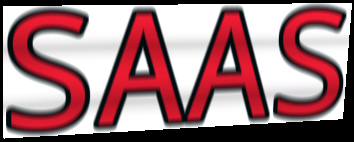
SAAS